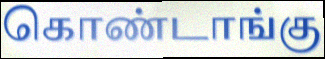
கொண்டாங்கு